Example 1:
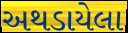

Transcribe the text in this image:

અથડાયેલા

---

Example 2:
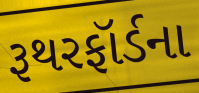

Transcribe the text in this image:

રૂથરફૉર્ડના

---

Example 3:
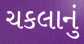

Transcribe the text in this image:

ચકલાનું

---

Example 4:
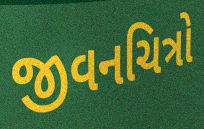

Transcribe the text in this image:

જીવનચિત્રો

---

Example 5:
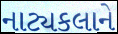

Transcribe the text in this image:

નાટ્યકલાને